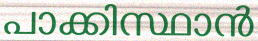
പാക്കിസ്ഥാൻ